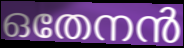
ഒതേനൻ